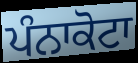
ਪੰਨਾਕੋਟਾ